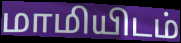
மாமியிடம்